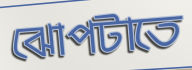
ঝোপটাতে